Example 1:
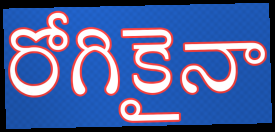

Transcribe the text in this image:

రోగికైనా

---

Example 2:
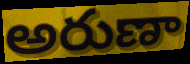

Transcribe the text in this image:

అరుణా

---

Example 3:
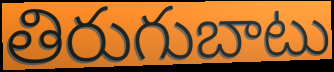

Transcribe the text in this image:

తిరుగుబాటు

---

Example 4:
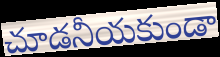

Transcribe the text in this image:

చూడనీయకుండా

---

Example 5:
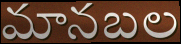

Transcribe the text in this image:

మానబల